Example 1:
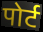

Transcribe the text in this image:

पोर्ट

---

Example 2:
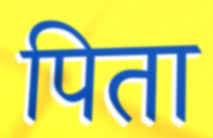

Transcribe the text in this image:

पिता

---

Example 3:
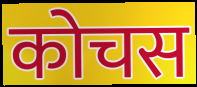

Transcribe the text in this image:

कोचस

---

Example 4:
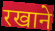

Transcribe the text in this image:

रखाने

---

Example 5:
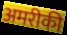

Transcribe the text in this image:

अमरीकी